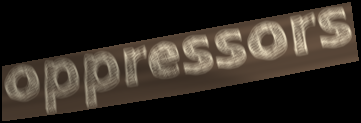
oppressors